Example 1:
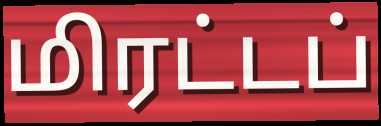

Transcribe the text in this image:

மிரட்டப்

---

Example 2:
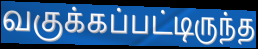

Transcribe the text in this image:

வகுக்கப்பட்டிருந்த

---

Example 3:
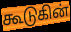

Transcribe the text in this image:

கூடுகின்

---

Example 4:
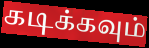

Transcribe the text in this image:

கடிக்கவும்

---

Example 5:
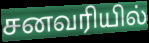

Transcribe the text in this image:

சனவரியில்